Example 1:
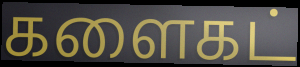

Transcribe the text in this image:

களைகட்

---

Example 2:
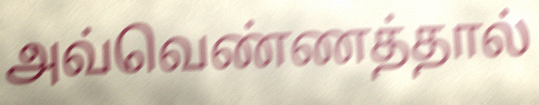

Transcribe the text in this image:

அவ்வெண்ணத்தால்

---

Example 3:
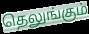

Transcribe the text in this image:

தெலுங்கும்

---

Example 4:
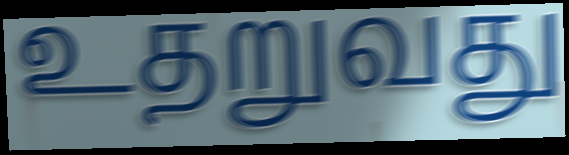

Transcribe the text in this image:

உதறுவது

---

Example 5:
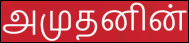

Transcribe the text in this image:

அமுதனின்